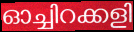
ഓച്ചിറക്കളി